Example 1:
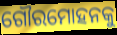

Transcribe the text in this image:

ଗୌରମୋହନକୁ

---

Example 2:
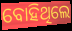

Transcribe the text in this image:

ବୋହିଥିଲେ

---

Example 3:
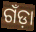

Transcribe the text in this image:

ଗଁଡ଼ା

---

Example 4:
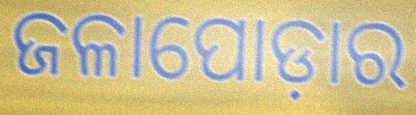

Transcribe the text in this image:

ଜଳାପୋଡ଼ାର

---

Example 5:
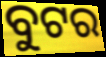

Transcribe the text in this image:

ବୁଟର